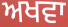
ਅਖਵਾ